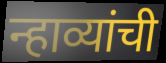
न्हाव्यांची